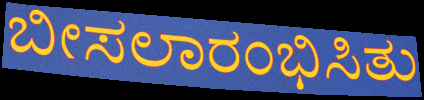
ಬೀಸಲಾರಂಭಿಸಿತು